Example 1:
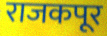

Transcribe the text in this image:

राजकपूर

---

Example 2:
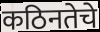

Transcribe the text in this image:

कठिनतेचे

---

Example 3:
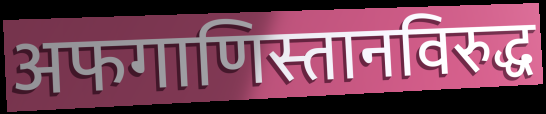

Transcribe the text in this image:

अफगाणिस्तानविरुद्ध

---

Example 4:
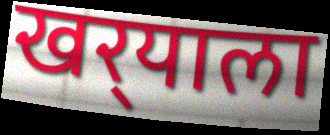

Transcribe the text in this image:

खर्‍याला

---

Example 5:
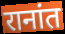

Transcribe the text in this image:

रानांत